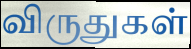
விருதுகள்